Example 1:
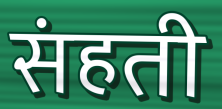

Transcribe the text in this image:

संहती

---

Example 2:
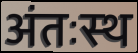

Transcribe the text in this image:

अंतःस्थ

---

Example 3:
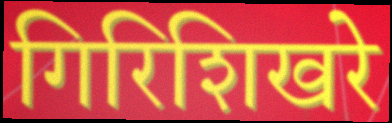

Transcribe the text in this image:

गिरिशिखरे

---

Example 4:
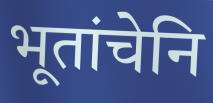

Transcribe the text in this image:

भूतांचेनि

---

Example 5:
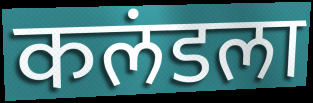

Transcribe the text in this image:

कलंडला